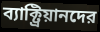
ব্যাক্ট্রিয়ানদের